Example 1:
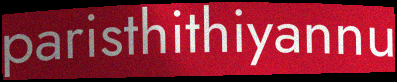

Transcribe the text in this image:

paristhithiyannu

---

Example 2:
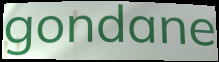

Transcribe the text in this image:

gondane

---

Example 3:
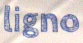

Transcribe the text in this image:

ligno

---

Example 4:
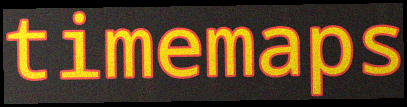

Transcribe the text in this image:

timemaps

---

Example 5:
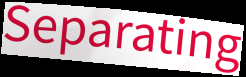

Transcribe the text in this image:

Separating